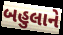
બહુલાને